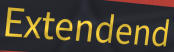
Extendend